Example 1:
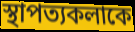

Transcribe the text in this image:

স্থাপত্যকলাকে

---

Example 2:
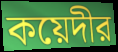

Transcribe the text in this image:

কয়েদীর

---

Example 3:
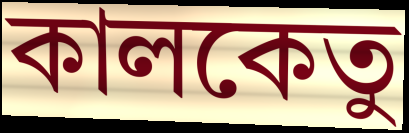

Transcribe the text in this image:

কালকেতু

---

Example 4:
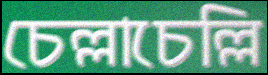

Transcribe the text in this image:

চেল্লাচেল্লি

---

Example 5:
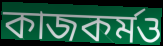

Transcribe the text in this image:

কাজকর্মও